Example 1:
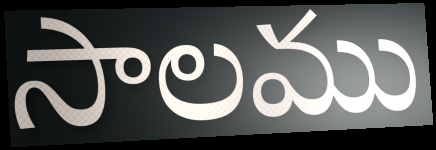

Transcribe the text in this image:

సాలము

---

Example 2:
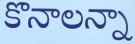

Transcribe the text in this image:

కొనాలన్నా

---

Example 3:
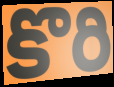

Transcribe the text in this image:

కొరి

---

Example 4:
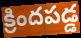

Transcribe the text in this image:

క్రిందపడ్డ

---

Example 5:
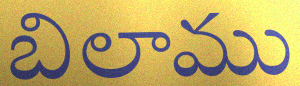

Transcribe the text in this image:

బిలాము